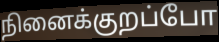
நினைக்குறப்போ